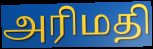
அரிமதி